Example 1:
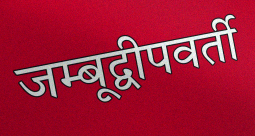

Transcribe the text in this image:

जम्बूद्वीपवर्ती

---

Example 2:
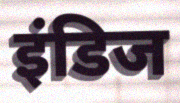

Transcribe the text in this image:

इंडिज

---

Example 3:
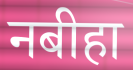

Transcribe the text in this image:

नबीहा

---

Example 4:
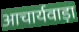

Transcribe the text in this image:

आचार्यवाड़ा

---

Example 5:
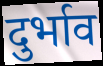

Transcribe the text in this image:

दुर्भाव